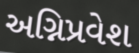
અગ્નિપ્રવેશ